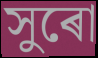
সুৰো